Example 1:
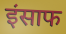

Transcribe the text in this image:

इंसाफ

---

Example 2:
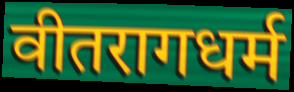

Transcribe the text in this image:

वीतरागधर्म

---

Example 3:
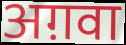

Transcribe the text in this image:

अग़वा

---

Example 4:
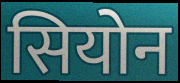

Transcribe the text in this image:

सियोन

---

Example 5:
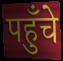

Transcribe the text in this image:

पहुँचे